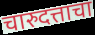
चारुदत्ताचा